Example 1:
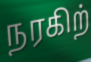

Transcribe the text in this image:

நரகிற்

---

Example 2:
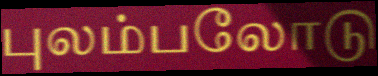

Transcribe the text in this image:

புலம்பலோடு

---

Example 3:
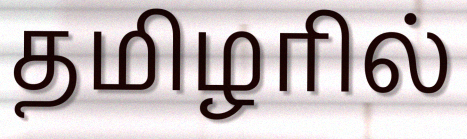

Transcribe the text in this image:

தமிழரில்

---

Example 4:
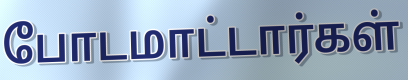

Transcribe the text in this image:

போடமாட்டார்கள்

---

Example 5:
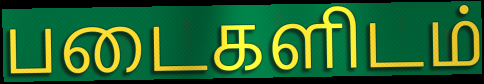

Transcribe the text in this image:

படைகளிடம்